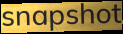
snapshot